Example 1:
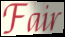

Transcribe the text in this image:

Fair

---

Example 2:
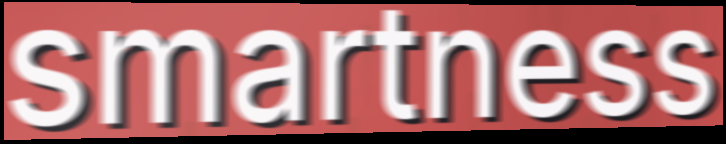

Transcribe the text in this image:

smartness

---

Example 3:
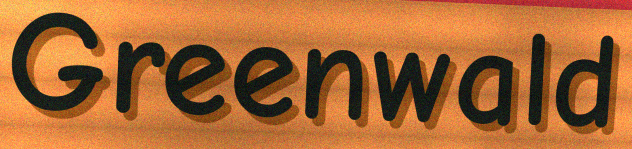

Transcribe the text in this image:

Greenwald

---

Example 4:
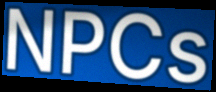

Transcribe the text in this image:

NPCs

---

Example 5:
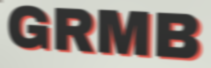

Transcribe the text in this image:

GRMB